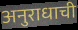
अनुराधाची